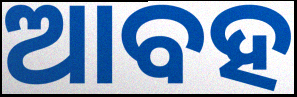
ଆବହ